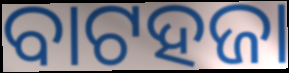
ବାଟହଜା